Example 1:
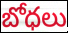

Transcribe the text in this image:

బోధలు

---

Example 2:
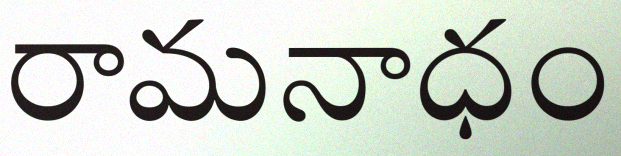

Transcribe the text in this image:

రామనాధం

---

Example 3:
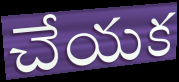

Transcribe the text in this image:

చేయక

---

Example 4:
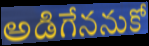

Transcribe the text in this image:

అడిగేననుకో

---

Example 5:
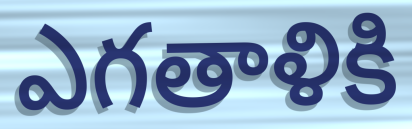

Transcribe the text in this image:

ఎగతాళికి